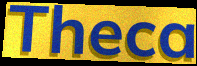
Theca